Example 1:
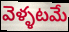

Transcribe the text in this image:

వెళ్ళటమే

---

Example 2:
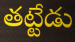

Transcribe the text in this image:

తట్టేడు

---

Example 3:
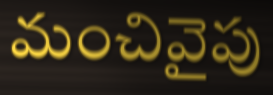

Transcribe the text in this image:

మంచివైపు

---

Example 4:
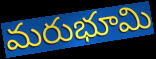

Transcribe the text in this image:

మరుభూమి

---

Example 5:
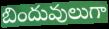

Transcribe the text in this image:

బిందువులుగా